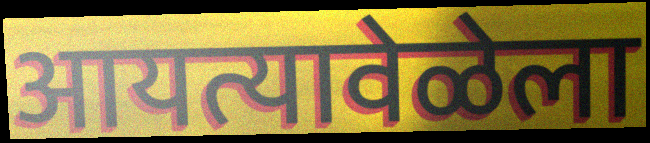
आयत्यावेळेला